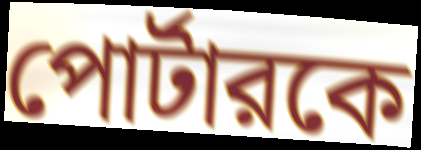
পোর্টারকে